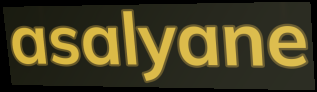
asalyane